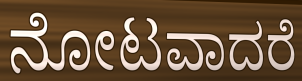
ನೋಟವಾದರೆ